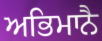
ਅਭਿਮਾਨੈ